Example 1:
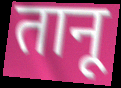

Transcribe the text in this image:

तानू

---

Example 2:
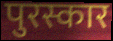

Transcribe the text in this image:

पुरस्कार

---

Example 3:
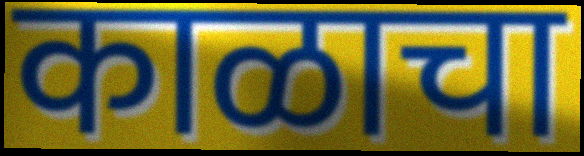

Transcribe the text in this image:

काळाचा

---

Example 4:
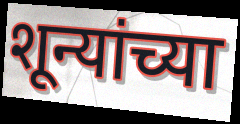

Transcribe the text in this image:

शून्यांच्या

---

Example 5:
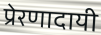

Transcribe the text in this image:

प्रेरणादायी